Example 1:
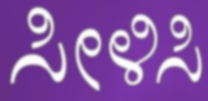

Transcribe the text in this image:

ಸೀಳಿಸಿ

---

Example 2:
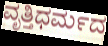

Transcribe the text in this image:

ವೃತ್ತಿಧರ್ಮದ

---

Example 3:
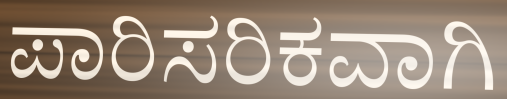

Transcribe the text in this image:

ಪಾರಿಸರಿಕವಾಗಿ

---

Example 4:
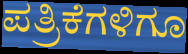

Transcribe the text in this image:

ಪತ್ರಿಕೆಗಳಿಗೂ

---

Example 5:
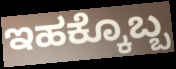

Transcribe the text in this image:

ಇಹಕ್ಕೊಬ್ಬ